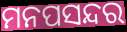
ମନପସନ୍ଦର